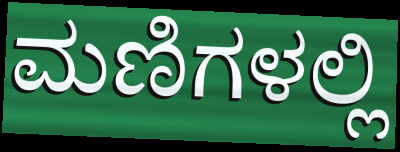
ಮಣಿಗಳಲ್ಲಿ